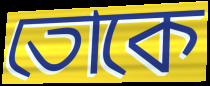
তোকে